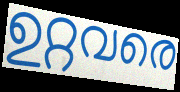
ഉറ്റവരെ